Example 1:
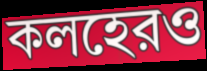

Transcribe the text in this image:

কলহেরও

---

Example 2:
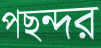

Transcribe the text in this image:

পছন্দর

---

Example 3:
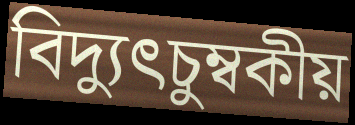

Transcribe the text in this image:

বিদ্যুৎচুম্বকীয়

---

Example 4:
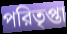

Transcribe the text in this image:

পরিতৃপ্তা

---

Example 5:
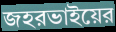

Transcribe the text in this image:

জহরভাইয়ের